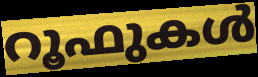
റൂഫുകൾ